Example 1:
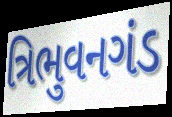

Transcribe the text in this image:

ત્રિભુવનગંડ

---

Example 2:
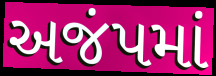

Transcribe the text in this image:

અજંપમાં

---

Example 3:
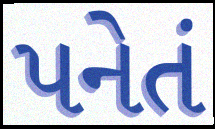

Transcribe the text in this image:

પનેતં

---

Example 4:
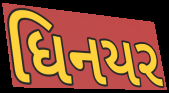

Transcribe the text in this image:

ધિનયર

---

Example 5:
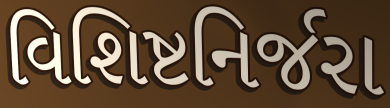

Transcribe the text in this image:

વિશિષ્ટનિર્જરા